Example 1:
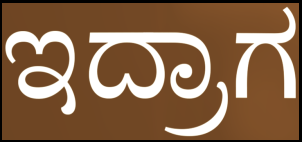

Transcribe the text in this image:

ಇದ್ರಾಗ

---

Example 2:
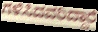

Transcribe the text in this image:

ಗಳಿಸಿದವರಿದ್ದಾರೆ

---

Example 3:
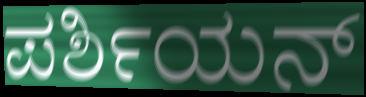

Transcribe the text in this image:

ಪರ್ಶಿಯನ್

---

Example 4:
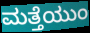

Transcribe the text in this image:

ಮತ್ತೆಯುಂ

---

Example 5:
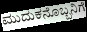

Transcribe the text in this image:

ಮುದುಕನೊಬ್ಬನಿಗೆ